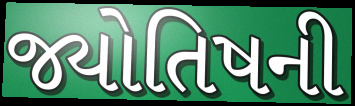
જ્યોતિષની